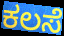
ಕಲಸೆ